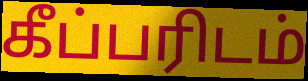
கீப்பரிடம்